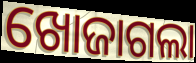
ଖୋଜାଗଲା